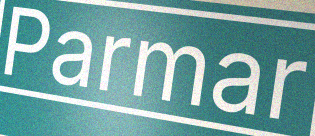
Parmar